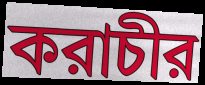
করাচীর